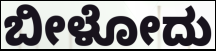
ಬೀಳೋದು